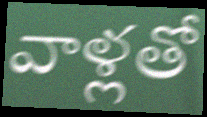
వాళ్లతో